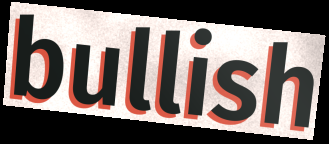
bullish